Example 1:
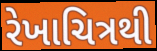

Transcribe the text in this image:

રેખાચિત્રથી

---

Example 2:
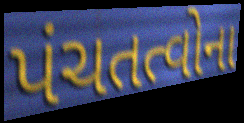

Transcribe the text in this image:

પંચતત્વોના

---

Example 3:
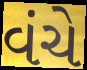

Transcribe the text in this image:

વંચે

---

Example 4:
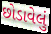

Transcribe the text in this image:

છોડાવેલું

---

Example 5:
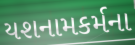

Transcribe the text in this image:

યશનામકર્મના